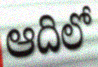
ఆదిలో